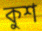
কুশ